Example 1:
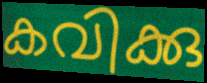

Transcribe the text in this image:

കവിക്കു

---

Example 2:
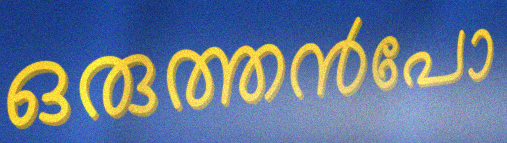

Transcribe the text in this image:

ഒരുത്തൻപോ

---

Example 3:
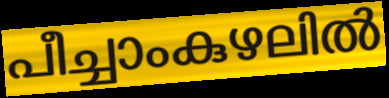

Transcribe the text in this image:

പീച്ചാംകുഴലിൽ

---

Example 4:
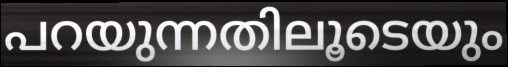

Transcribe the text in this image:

പറയുന്നതിലൂടെയും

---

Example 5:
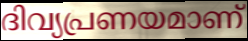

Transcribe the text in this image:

ദിവ്യപ്രണയമാണ്